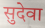
सुदेवा